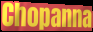
Chopanna